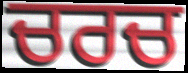
ਚਰਚ